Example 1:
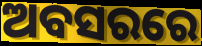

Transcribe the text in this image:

ଅବସରରେ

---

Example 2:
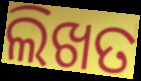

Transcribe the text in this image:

ଲିଖତ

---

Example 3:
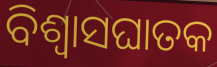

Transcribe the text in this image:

ବିଶ୍ୱାସଘାତକ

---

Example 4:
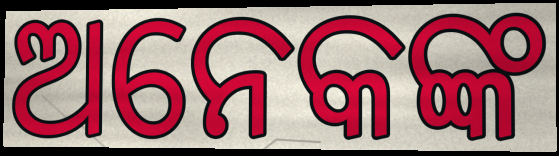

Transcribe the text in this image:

ଅନେକଙ୍କ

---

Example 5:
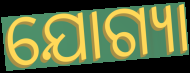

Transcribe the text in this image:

ଯୋଗ୍ୟା